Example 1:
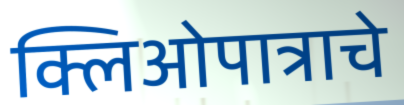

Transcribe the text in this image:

क्लिओपात्राचे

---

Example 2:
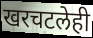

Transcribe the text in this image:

खरचटलेही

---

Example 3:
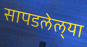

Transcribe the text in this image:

सापडलेल्या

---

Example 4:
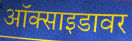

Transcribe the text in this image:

ऑक्साइडावर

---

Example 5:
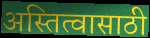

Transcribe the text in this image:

अस्तित्वासाठी